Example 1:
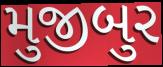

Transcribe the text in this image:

મુજીબુર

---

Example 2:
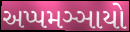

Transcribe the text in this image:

અપ્પમઞ્ઞાયો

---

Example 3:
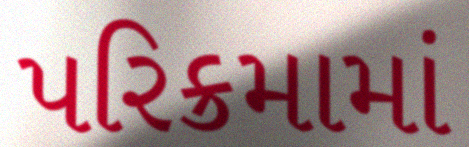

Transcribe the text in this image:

પરિક્રમામાં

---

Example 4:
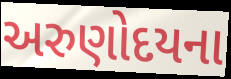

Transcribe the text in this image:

અરુણોદયના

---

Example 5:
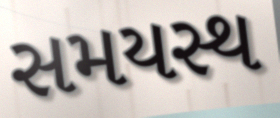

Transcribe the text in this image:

સમયસ્થ